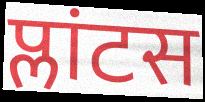
प्लांटस